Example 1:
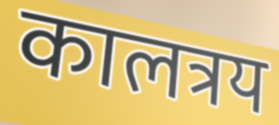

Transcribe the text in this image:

कालत्रय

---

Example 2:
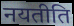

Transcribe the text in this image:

नयतीति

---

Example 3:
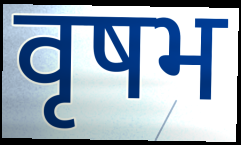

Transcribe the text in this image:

वृषभ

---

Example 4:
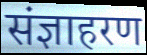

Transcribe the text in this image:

संज्ञाहरण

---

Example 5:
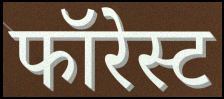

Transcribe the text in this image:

फॉरेस्ट